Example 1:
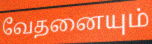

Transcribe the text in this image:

வேதனையும்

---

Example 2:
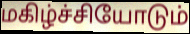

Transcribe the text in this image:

மகிழ்ச்சியோடும்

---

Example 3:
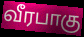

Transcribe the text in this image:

வீரபாகு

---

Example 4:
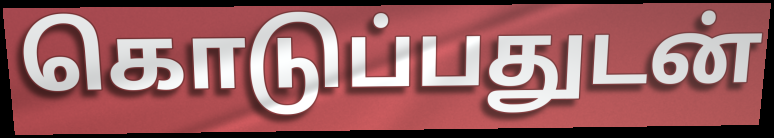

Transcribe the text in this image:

கொடுப்பதுடன்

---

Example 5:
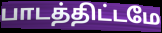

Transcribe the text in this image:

பாடத்திட்டமே